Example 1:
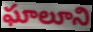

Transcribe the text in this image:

ఘాలూని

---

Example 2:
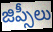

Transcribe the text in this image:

జిప్సీలు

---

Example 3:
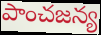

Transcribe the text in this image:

పాంచజన్య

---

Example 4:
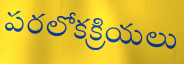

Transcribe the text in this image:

పరలోకక్రియలు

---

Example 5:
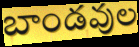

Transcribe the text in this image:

బాండవుల